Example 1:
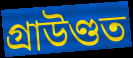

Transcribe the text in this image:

গ্ৰাউণ্ডত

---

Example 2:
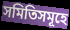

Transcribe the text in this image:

সমিতিসমূহে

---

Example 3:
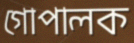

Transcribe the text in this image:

গোপালক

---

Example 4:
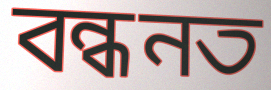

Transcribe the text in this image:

বন্ধনত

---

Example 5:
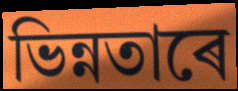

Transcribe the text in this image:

ভিন্নতাৰে